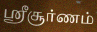
ஸ்ரீசூர்ணம்